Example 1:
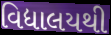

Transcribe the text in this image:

વિદ્યાલયથી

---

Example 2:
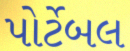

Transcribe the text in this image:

પોર્ટેબલ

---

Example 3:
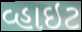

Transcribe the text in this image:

વ્હાઇટ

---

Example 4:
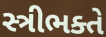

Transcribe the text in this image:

સ્ત્રીભક્તે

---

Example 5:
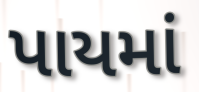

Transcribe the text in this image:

પાયમાં